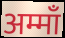
अम्माँ